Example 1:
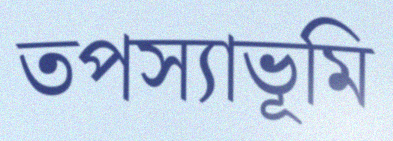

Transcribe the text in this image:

তপস্যাভূমি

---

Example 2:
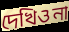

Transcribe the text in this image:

দেখিওনা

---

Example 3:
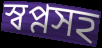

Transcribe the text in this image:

স্বপ্নসহ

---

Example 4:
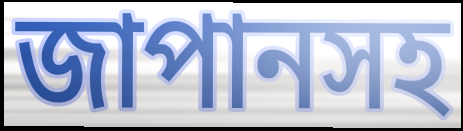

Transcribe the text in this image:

জাপানসহ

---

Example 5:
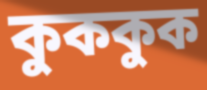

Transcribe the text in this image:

কুককুক